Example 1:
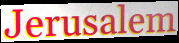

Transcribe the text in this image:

Jerusalem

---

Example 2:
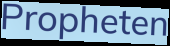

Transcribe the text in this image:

Propheten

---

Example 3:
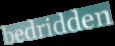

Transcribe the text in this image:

bedridden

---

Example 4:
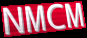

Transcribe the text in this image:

NMCM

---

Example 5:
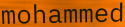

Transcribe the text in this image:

mohammed